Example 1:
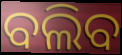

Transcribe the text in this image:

ବଲିବ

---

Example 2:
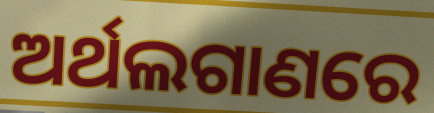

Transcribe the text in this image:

ଅର୍ଥଲଗାଣରେ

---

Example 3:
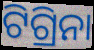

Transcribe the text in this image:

ଟିଗ୍ରିନା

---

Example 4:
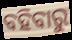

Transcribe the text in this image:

ବହିବାରୁ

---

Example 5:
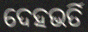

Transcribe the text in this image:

ଦେହଭର୍ତି